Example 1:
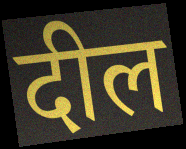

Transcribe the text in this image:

दील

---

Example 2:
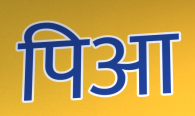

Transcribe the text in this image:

पिआ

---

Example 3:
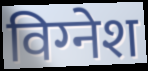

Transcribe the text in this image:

विग्‍नेश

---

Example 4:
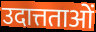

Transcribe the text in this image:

उदात्तताओं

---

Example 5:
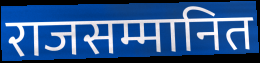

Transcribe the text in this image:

राजसम्मानित